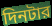
দিনটার